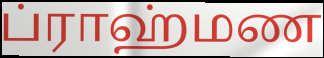
ப்ராஹ்மண